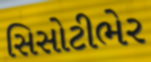
સિસોટીભેર